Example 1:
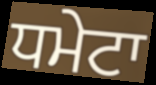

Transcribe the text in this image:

ਧਮੇਟਾ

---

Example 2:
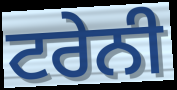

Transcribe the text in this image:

ਟਰੇਨੀ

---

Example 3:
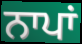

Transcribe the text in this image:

ਨਾਪਾਂ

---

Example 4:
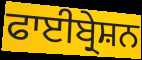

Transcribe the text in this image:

ਫਾਈਬ੍ਰੇਸ਼ਨ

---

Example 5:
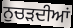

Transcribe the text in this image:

ਨੁਚੜਦੀਆਂ